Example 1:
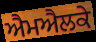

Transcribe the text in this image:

ਐਮਐਲਕੇ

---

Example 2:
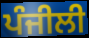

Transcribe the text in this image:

ਪੰਜੀਲੀ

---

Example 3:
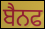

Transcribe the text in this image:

ਬੈਨਫ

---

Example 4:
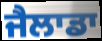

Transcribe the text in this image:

ਜੈਲਾਡਾ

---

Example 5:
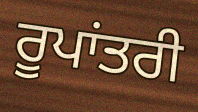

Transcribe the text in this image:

ਰੂਪਾਂਤਰੀ